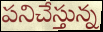
పనిచేస్తున్న